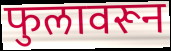
फुलावरून